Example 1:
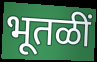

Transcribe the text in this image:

भूतळीं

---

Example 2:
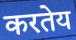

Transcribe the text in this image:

करतेय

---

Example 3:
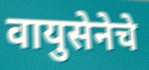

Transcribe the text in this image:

वायुसेनेचे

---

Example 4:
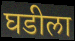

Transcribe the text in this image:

घडीला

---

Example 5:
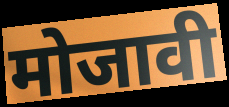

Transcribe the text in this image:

मोजावी